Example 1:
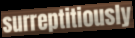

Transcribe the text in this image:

surreptitiously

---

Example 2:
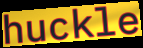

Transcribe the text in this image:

huckle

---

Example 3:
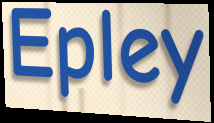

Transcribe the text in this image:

Epley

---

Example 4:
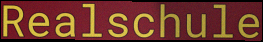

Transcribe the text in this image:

Realschule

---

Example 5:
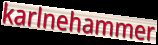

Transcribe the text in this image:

karlnehammer